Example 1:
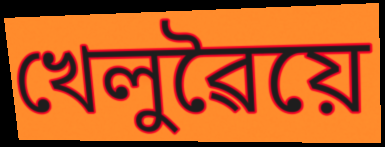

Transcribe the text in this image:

খেলুৱৈয়ে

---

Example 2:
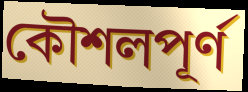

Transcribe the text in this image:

কৌশলপূৰ্ণ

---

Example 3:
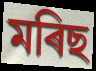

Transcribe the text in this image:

মৰিছ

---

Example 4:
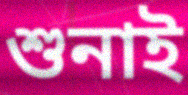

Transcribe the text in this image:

শুনাই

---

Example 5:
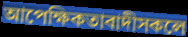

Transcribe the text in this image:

আপেক্ষিকতাবাদীসকলে